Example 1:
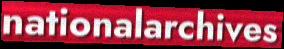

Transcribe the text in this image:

nationalarchives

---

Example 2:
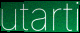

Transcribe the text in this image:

utarti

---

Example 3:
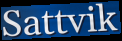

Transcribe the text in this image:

Sattvik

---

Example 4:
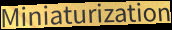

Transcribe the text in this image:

Miniaturization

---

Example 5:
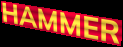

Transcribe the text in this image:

HAMMER